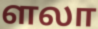
ளலா